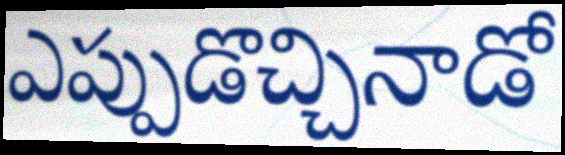
ఎప్పుడొచ్చినాడో